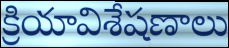
క్రియావిశేషణాలు